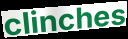
clinches